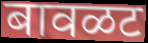
बावळट